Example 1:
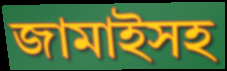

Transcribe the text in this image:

জামাইসহ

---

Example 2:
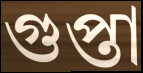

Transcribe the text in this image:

গুপ্তা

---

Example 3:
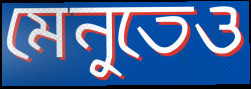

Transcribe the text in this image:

মেনুতেও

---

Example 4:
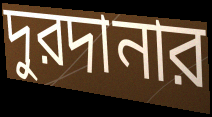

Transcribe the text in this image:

দুরদানার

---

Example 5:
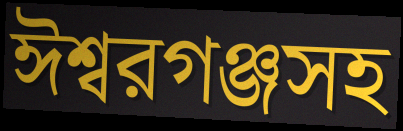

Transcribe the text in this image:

ঈশ্বরগঞ্জসহ